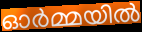
ഓർമ്മയിൽ